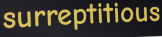
surreptitious